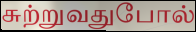
சுற்றுவதுபோல்